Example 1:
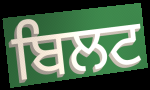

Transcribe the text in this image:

ਬਿਲਟ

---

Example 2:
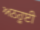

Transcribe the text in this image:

ਅਨਹੂਈ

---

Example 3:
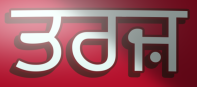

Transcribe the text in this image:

ਤਰਜ਼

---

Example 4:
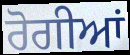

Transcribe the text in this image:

ਰੋਗੀਆਂ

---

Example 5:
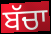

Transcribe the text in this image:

ਬੱਚਾ